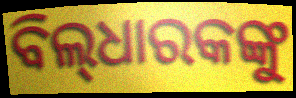
ବିଲ୍‌ଧାରକଙ୍କୁ